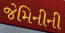
જેમિનીની